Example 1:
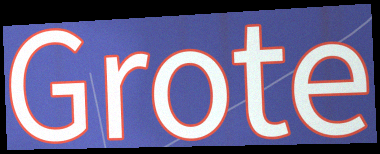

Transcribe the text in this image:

Grote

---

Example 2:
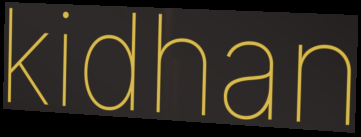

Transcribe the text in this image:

kidhan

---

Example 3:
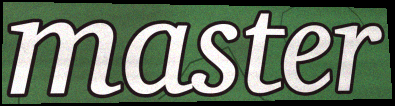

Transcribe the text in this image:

master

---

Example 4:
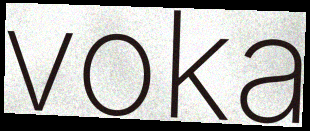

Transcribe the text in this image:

voka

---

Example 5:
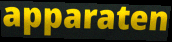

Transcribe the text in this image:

apparaten